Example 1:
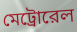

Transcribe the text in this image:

মেট্রোরেল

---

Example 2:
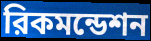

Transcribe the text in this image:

রিকমন্ডেশন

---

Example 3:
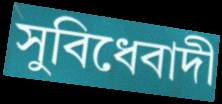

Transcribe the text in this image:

সুবিধেবাদী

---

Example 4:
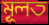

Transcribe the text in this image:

মূলত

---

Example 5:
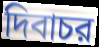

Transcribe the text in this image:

দিবাচর